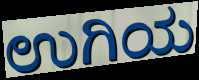
ಉಗಿಯ